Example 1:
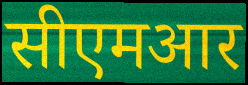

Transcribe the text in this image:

सीएमआर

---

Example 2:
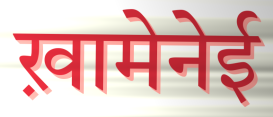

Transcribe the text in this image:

ख़ामेनेई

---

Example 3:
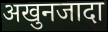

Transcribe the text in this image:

अखुनजादा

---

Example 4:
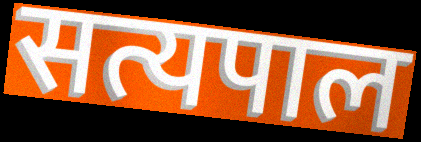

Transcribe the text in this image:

सत्यपाल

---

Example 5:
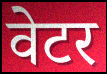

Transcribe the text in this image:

वेटर